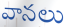
వానలు